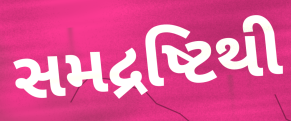
સમદ્રષ્ટિથી